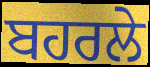
ਬਹਰਲੇ